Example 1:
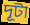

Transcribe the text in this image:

দূটা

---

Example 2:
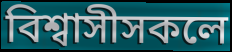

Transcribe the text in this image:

বিশ্বাসীসকলে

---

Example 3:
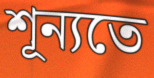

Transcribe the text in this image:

শূন্যতে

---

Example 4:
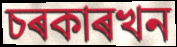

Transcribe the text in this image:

চৰকাৰখন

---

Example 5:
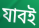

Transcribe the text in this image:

যাবই